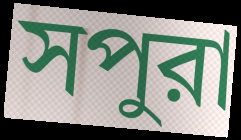
সপুরা